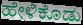
ಹೇಳಿಕೊಡು